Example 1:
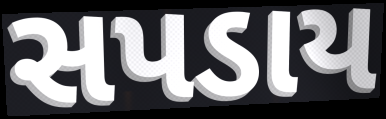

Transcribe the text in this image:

સપડાય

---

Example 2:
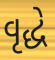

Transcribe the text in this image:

વૃદ્ધે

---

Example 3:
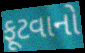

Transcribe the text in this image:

ફૂટવાનો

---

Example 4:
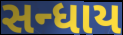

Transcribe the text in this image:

સન્ધાય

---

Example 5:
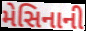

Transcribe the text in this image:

મેસિનાની